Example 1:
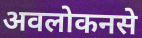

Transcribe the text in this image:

अवलोकनसे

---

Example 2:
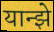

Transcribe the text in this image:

यान्झे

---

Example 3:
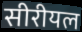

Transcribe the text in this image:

सीरीयल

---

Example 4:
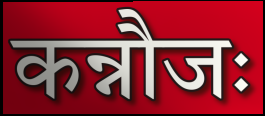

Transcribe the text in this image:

कन्नौजः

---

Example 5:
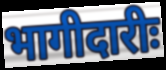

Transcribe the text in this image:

भागीदारीः